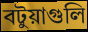
বটুয়াগুলি